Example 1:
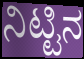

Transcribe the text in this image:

ನಿಟ್ಟಿನ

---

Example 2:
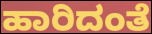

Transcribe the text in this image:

ಹಾರಿದಂತೆ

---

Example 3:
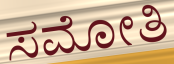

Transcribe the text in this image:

ಸಮೋತಿ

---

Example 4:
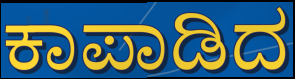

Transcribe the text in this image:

ಕಾಪಾಡಿದ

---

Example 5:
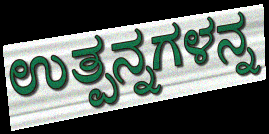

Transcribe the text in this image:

ಉತ್ಪನ್ನಗಳನ್ನ